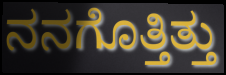
ನನಗೊತ್ತಿತ್ತು